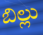
బిల్లు